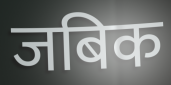
जबिक